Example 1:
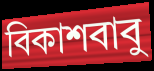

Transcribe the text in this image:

বিকাশবাবু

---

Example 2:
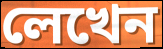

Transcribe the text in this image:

লেখেন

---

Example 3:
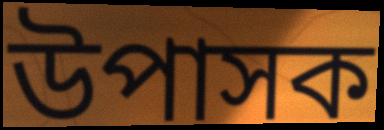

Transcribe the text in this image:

উপাসক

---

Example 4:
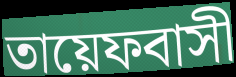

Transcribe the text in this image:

তায়েফবাসী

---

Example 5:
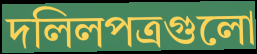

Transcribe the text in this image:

দলিলপত্রগুলো